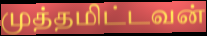
முத்தமிட்டவன்